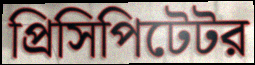
প্রিসিপিটেটর